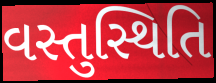
વસ્તુસ્થિતિ